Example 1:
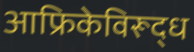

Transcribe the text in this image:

आफ्रिकेविरूद्ध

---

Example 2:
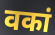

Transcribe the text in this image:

वकां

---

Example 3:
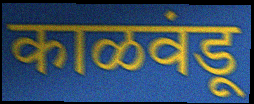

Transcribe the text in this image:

काळवंडू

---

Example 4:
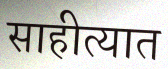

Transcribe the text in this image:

साहीत्यात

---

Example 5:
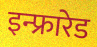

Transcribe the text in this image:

इन्फ्रारेड